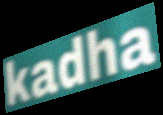
kadha